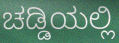
ಚಡ್ಡಿಯಲ್ಲಿ